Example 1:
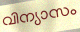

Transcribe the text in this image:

വിന്യാസം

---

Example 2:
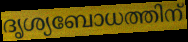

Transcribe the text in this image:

ദൃശ്യബോധത്തിന്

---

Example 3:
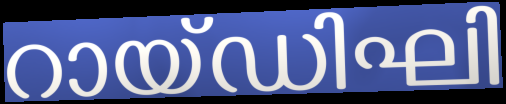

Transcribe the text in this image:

റായ്ഡിഘി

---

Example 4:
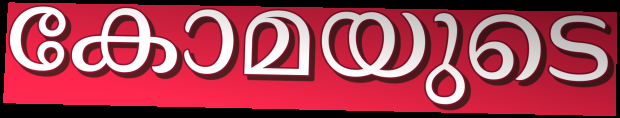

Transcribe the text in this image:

കോമയുടെ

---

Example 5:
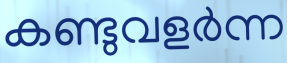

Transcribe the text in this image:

കണ്ടുവളർന്ന